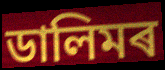
ডালিমৰ